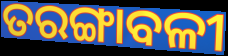
ତରଙ୍ଗାବଳୀ